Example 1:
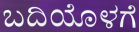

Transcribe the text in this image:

ಬದಿಯೊಳಗೆ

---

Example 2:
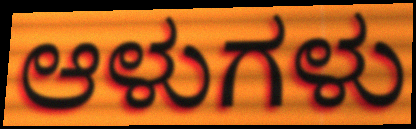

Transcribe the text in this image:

ಆಳುಗಳು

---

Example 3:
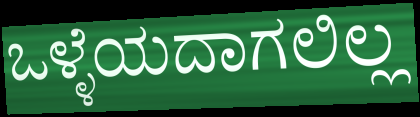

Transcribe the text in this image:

ಒಳ್ಳೆಯದಾಗಲಿಲ್ಲ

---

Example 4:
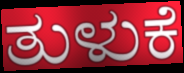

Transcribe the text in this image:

ತುಳುಕೆ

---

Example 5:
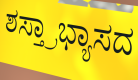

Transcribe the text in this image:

ಶಸ್ತ್ರಾಭ್ಯಾಸದ